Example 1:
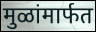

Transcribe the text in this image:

मुळांमार्फत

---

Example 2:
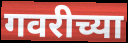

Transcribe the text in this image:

गवरीच्या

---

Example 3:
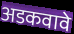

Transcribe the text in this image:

अडकवावे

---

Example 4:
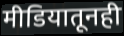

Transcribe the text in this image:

मीडियातूनही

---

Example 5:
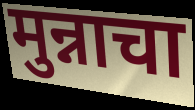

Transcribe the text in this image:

मुन्नाचा